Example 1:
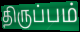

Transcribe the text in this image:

திருப்பம்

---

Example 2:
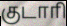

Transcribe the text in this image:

குடாரி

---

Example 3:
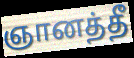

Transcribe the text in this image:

ஞானத்தீ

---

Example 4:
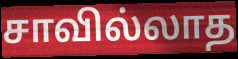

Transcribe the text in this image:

சாவில்லாத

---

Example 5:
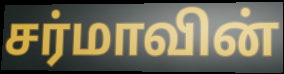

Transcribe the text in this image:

சர்மாவின்